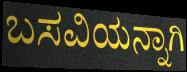
ಬಸವಿಯನ್ನಾಗಿ